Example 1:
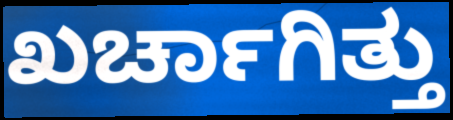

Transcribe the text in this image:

ಖರ್ಚಾಗಿತ್ತು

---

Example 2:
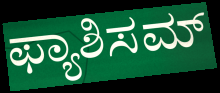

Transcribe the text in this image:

ಫ್ಯಾಶಿಸಮ್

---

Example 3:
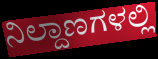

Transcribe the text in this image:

ನಿಲ್ದಾಣಗಳಲ್ಲಿ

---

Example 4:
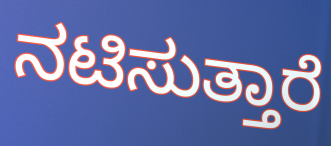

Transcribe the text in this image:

ನಟಿಸುತ್ತಾರೆ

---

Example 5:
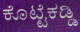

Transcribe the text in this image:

ಕೊಟ್ಟೆಕಡ್ಡಿ